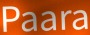
Paara